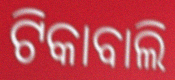
ଟିକାବାଲି